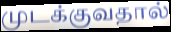
முடக்குவதால்